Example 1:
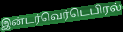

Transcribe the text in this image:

இன்டர்வெர்டெபிரல்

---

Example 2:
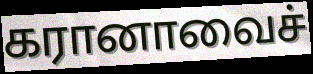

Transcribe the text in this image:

கரானாவைச்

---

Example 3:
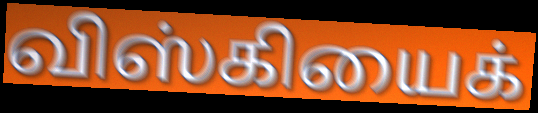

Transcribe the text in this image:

விஸ்கியைக்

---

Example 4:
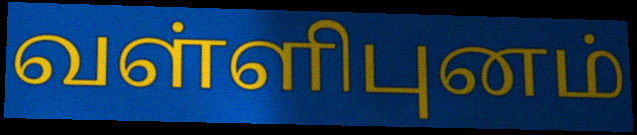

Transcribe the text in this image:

வள்ளிபுனம்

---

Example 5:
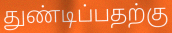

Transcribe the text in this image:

துண்டிப்பதற்கு